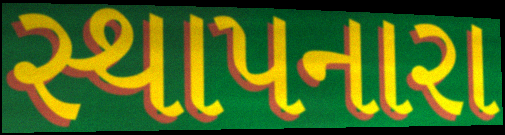
સ્થાપનારા